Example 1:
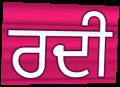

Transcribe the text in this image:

ਰਦੀ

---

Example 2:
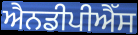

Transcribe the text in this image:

ਐਨਡੀਪੀਐੱਸ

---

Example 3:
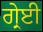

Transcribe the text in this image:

ਗ੍ਰੇਈ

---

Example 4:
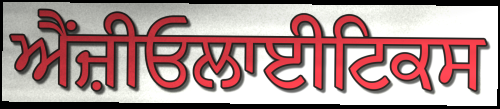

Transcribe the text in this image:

ਐਂਜ਼ੀਓਲਾਈਟਿਕਸ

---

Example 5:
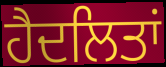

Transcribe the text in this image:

ਹੈਦਲਿਤਾਂ